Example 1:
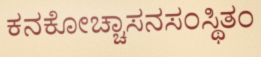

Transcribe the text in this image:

ಕನಕೋಚ್ಚಾಸನಸಂಸ್ಥಿತಂ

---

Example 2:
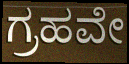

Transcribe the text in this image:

ಗ್ರಹವೇ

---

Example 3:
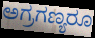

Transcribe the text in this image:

ಅಗ್ರಗಣ್ಯರೂ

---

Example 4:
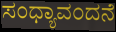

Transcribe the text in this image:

ಸಂಧ್ಯಾವಂದನೆ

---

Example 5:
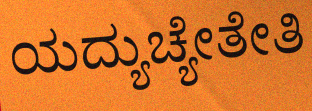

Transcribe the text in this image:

ಯದ್ಯುಚ್ಯೇತೇತಿ